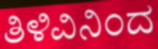
ತಿಳಿವಿನಿಂದ